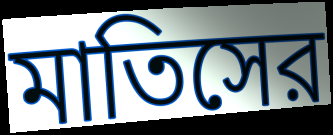
মাতিসের